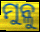
ମୁନ୍ଳୁ